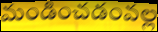
మండించడంవల్ల